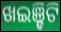
ଖଇଞ୍ଚିଟି